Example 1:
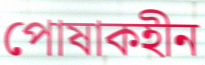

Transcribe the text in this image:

পোষাকহীন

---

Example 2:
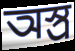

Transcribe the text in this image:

অস্ত্র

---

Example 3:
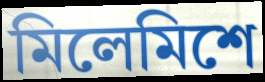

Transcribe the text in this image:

মিলেমিশে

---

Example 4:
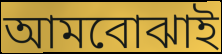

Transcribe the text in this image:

আমবোঝাই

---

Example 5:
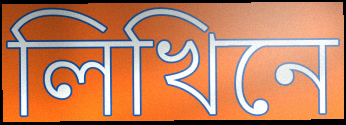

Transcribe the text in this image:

লিখিনে